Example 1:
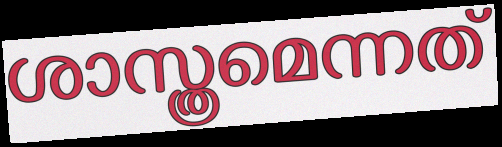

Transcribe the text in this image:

ശാസ്ത്രമെന്നത്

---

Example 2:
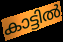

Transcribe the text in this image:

കാട്ടിൽ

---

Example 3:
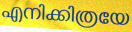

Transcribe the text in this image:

എനിക്കിത്രയേ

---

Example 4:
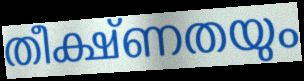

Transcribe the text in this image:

തീക്ഷ്‌ണതയും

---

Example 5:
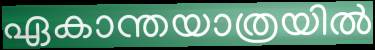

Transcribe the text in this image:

ഏകാന്തയാത്രയിൽ